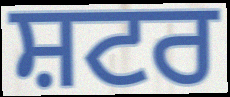
ਸ਼ਟਰ